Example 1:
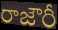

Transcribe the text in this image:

రాజౌరీ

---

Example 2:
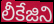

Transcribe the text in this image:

లీకేజిని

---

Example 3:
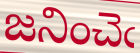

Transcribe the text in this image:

జనించెఁ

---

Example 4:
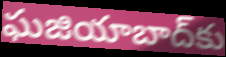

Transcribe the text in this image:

ఘజియాబాద్‌కు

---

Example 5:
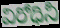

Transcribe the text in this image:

విరోధినీ